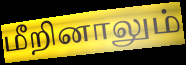
மீறினாலும்